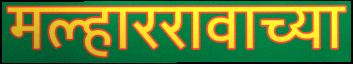
मल्हाररावाच्या